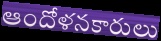
ఆందోళనకారులు